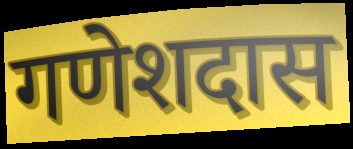
गणेशदास